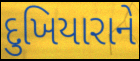
દુખિયારાને